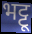
भट्टू